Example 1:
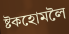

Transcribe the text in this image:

ষ্টকহোমলৈ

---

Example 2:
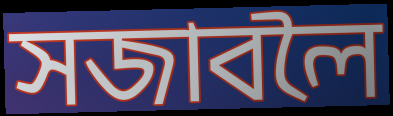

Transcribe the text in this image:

সজাবলৈ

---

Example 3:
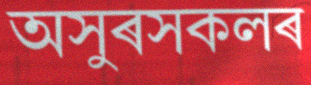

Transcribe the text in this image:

অসুৰসকলৰ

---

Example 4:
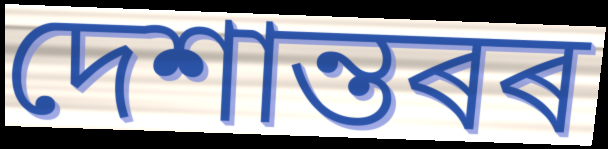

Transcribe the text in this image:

দেশান্তৰৰ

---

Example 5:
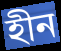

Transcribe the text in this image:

হীন